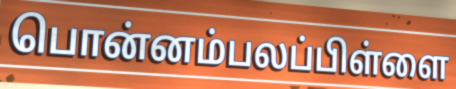
பொன்னம்பலப்பிள்ளை